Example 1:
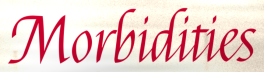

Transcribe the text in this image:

Morbidities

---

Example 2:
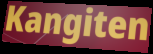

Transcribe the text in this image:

Kangiten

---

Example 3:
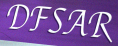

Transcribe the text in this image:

DFSAR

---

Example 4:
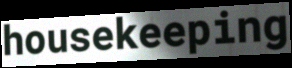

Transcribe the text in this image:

housekeeping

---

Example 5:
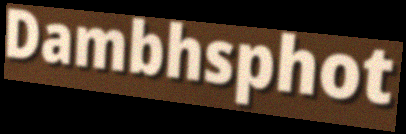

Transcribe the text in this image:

Dambhsphot